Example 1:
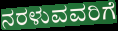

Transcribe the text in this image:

ನರಳುವವರಿಗೆ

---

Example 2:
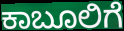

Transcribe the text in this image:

ಕಾಬೂಲಿಗೆ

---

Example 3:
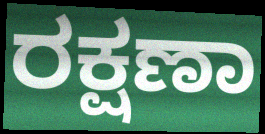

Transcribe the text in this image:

ರಕ್ಷಣಾ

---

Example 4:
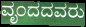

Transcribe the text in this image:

ವೃಂದದವರು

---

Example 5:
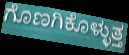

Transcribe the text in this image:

ಗೊಣಗಿಕೊಳ್ಳುತ್ತ